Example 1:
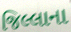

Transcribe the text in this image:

જિલ્લાના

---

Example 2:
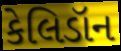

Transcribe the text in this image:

કેલિડૉન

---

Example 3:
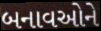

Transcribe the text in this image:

બનાવઓને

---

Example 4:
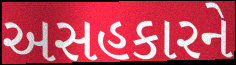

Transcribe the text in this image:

અસહકારને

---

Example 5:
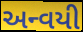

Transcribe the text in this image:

અન્વયી